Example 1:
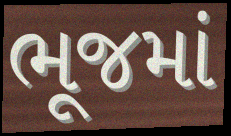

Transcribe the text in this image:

ભૂજમાં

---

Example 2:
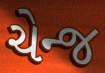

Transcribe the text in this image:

ચેન્જ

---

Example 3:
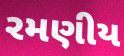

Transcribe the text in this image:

રમણીય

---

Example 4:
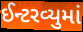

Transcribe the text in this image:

ઈન્ટરવ્યુમાં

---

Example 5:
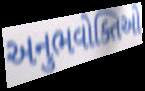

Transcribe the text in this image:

અનુભવોક્તિઓ